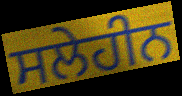
ਸਲੇਹੀਨ